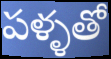
పళ్ళతో